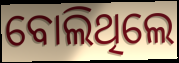
ବୋଲିଥିଲେ